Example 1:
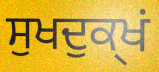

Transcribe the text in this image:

ਸੁਖਦੁਕ੍ਖਂ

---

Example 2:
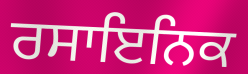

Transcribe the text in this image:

ਰਸਾਇਨਿਕ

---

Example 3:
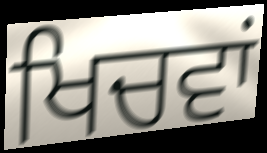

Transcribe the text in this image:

ਖਿਚਵਾਂ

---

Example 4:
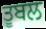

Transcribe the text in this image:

ਤੂਬਲ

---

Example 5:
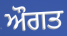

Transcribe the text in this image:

ਔਗਤ